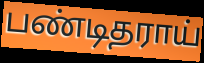
பண்டிதராய்